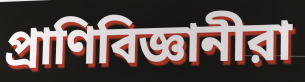
প্রাণিবিজ্ঞানীরা